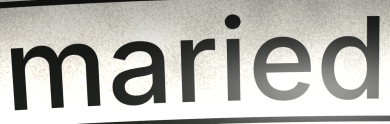
maried